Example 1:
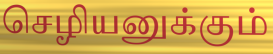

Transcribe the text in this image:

செழியனுக்கும்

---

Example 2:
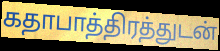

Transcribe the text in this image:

கதாபாத்திரத்துடன்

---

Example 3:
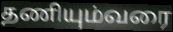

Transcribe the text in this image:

தணியும்வரை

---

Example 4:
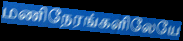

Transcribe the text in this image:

மணிநேரங்களிலேயே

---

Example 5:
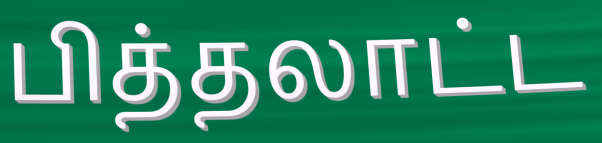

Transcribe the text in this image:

பித்தலாட்ட